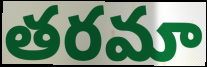
తరమా